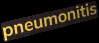
pneumonitis